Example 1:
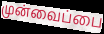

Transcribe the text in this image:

முன்வைப்பை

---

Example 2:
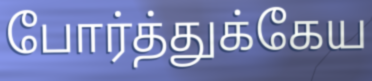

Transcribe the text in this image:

போர்த்துக்கேய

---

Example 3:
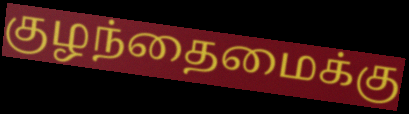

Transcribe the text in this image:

குழந்தைமைக்கு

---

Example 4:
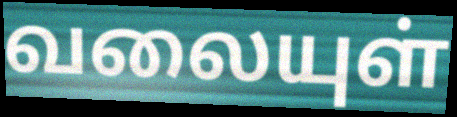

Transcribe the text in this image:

வலையுள்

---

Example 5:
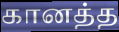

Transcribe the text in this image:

கானத்த